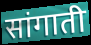
सांगाती